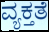
ವ್ಯಕ್ತತೆ